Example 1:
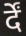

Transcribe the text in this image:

र्दें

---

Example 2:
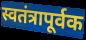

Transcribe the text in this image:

स्वतंत्रापूर्वक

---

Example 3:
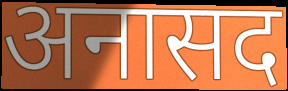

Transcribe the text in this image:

अनासद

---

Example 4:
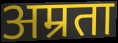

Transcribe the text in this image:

अम्रता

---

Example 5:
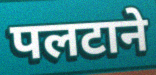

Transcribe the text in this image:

पलटाने